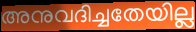
അനുവദിച്ചതേയില്ല